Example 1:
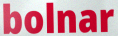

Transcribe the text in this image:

bolnar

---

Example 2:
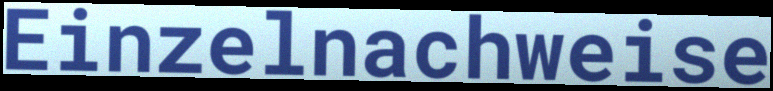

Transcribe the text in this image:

Einzelnachweise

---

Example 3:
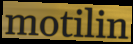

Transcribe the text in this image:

motilin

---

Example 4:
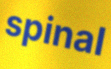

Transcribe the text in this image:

spinal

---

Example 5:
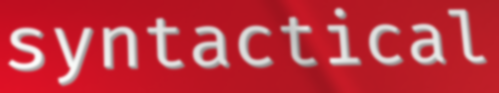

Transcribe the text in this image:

syntactical